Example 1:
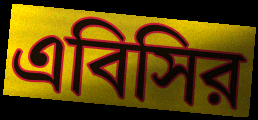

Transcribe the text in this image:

এবিসির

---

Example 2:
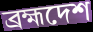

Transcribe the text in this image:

ব্রহ্মদেশ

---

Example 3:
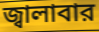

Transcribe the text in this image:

জ্বালাবার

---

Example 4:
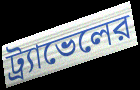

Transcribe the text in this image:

ট্র্যাভেলের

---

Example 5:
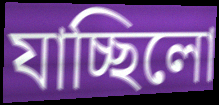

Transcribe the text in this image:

যাচ্ছিলো